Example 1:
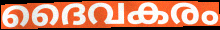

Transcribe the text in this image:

ദൈവകരം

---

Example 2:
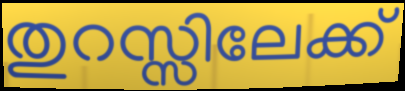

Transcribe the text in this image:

തുറസ്സിലേക്ക്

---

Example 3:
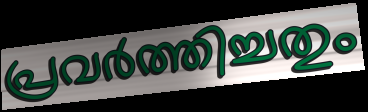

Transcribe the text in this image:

പ്രവർത്തിച്ചതും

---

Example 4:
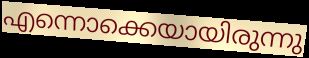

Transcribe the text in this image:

എന്നൊക്കെയായിരുന്നു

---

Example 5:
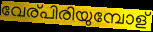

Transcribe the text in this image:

വേര്പിരിയുമ്പോള്